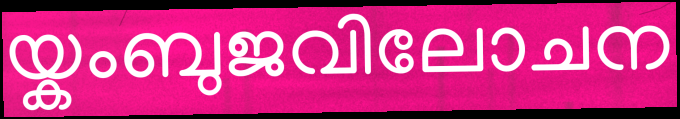
യ്കംബുജവിലോചന